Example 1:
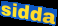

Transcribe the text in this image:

sidda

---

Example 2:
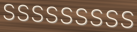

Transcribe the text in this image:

sssssssss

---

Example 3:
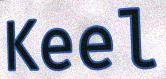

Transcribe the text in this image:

Keel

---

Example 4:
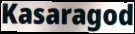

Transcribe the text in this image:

Kasaragod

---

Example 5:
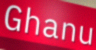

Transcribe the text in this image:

Ghanu